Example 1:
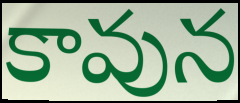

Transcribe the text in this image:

కావున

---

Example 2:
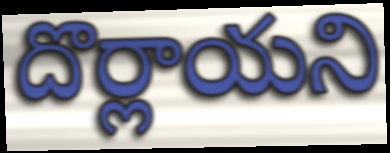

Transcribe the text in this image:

దొర్లాయని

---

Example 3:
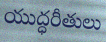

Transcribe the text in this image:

యుద్ధరీతులు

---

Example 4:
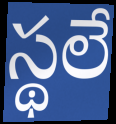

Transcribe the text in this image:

స్థలే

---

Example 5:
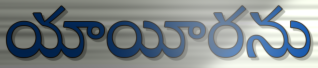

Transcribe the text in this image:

యాయీరను